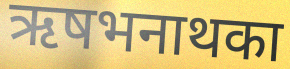
ऋषभनाथका